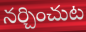
నర్చించుట